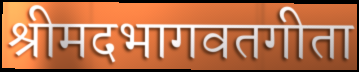
श्रीमदभागवतगीता